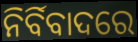
ନିର୍ବିବାଦରେ